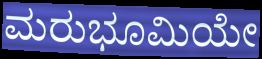
ಮರುಭೂಮಿಯೇ